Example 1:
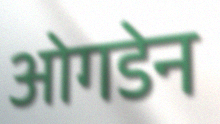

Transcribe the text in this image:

ओगडेन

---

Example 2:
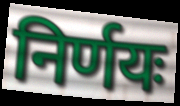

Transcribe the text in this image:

निर्णयः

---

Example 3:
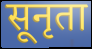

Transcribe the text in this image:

सूनृता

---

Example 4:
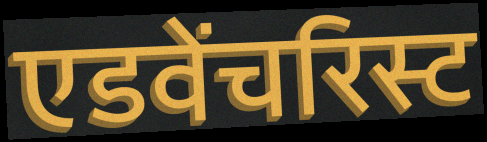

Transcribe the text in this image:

एडवेंचरिस्ट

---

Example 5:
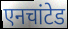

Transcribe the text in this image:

एनचांटेड